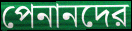
পেনানদের